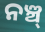
ନଞ୍ଚ୍